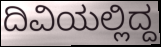
ದಿವಿಯಲ್ಲಿದ್ದ